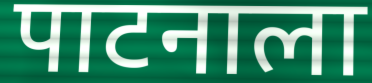
पाटनाला